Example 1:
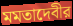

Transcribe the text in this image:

মমতাদেবীর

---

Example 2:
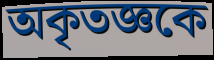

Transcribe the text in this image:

অকৃতজ্ঞকে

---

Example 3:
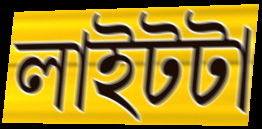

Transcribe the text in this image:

লাইটটা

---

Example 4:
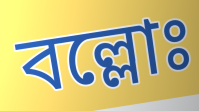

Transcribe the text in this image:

বল্লোঃ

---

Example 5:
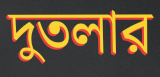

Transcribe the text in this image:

দুতলার